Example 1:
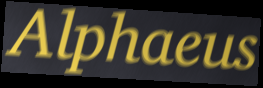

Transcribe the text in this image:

Alphaeus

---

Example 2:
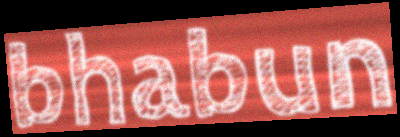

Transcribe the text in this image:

bhabun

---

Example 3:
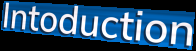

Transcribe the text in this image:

Intoduction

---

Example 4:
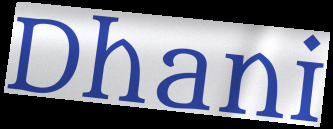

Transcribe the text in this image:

Dhani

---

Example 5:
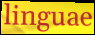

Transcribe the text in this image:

linguae